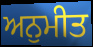
ਅਨੁਮੀਤ